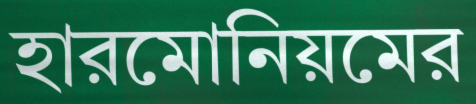
হারমোনিয়মের